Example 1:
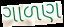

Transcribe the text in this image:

ગાળણ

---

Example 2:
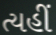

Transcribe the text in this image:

ત્યહીં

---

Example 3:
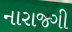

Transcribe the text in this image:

નારાજ્ગી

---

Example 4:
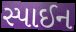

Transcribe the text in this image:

સ્પાઈન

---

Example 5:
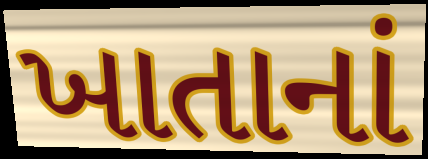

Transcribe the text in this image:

ખાતાનાં